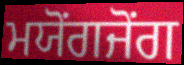
ਮਯੋਂਗਜੋਂਗ